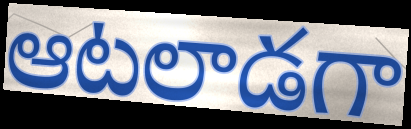
ఆటలాడగా